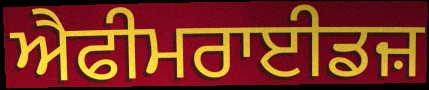
ਐਫੀਮਰਾਈਡਜ਼